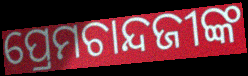
ପ୍ରେମଚାନ୍ଦଜୀଙ୍କ